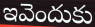
ఇవెందుకు